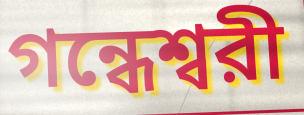
গন্ধেশ্বরী